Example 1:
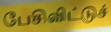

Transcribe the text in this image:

பேசிவிட்டுச்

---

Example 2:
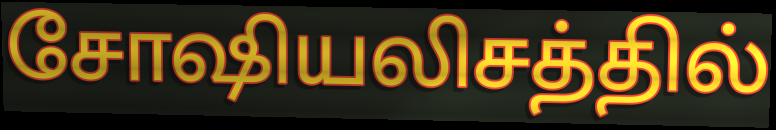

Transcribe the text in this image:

சோஷியலிசத்தில்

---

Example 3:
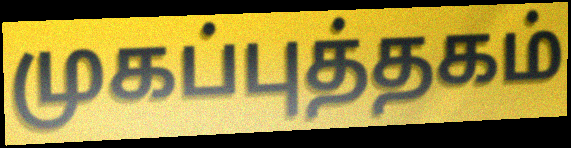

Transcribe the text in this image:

முகப்புத்தகம்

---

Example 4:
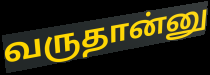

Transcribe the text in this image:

வருதான்னு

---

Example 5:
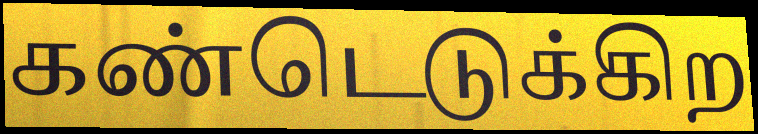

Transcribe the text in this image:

கண்டெடுக்கிற